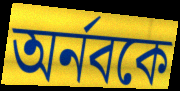
অর্নবকে